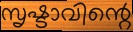
സൃഷ്ടാവിന്റെ